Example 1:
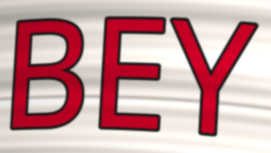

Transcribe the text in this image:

BEY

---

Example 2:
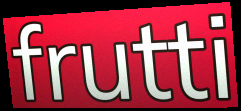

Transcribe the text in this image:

frutti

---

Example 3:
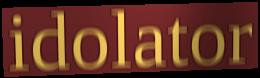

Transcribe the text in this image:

idolator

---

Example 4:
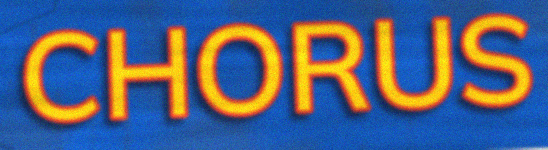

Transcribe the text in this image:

CHORUS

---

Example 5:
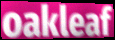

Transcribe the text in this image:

oakleaf